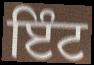
ਇੰਟ